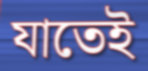
যাতেই